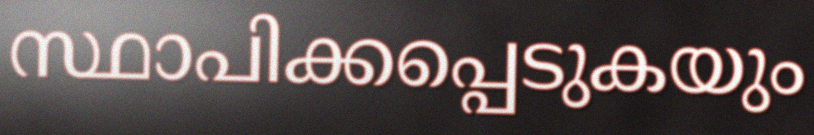
സ്ഥാപിക്കപ്പെടുകയും